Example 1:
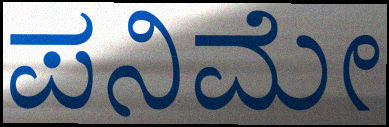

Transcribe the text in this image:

ಪನಿಮೇ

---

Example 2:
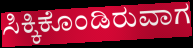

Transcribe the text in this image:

ಸಿಕ್ಕಿಕೊಂಡಿರುವಾಗ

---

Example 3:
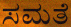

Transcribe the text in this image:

ಸಮತೆ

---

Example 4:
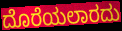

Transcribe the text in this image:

ದೊರೆಯಲಾರದು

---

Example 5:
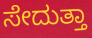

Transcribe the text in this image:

ಸೇದುತ್ತಾ